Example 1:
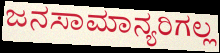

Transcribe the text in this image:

ಜನಸಾಮಾನ್ಯರಿಗಲ್ಲ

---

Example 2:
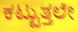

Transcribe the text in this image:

ಕಟ್ಟುತ್ತಲೇ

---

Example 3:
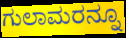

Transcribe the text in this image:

ಗುಲಾಮರನ್ನೂ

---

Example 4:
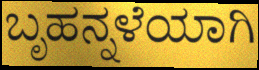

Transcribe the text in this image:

ಬೃಹನ್ನಳೆಯಾಗಿ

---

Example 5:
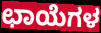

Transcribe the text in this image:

ಛಾಯೆಗಳ